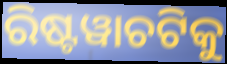
ରିଷ୍ଟୱାଚଟିକୁ